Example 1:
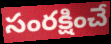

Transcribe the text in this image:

సంరక్షించే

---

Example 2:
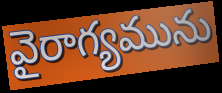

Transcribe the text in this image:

వైరాగ్యమును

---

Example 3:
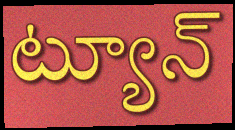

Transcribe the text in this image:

ట్యూన్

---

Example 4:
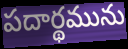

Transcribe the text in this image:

పదార్థమును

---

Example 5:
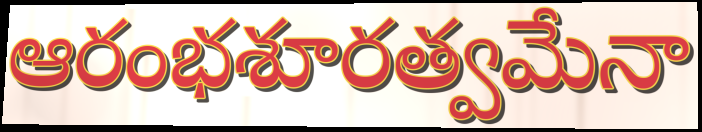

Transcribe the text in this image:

ఆరంభశూరత్వమేనా